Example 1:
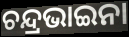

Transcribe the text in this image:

ଚନ୍ଦ୍ରଭାଇନା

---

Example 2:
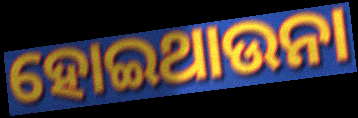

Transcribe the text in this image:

ହୋଇଥାଉନା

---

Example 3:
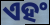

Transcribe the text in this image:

ଏହଂ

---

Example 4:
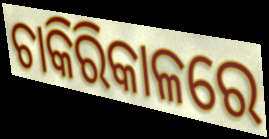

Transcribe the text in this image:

ଚାକିରିକାଳରେ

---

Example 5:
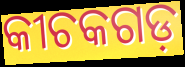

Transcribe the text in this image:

କୀଚକଗଡ଼